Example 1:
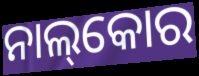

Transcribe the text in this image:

ନାଲ୍‌କୋର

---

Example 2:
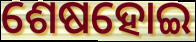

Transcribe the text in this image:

ଶେଷହୋଇ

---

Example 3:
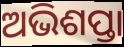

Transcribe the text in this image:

ଅଭିଶପ୍ତା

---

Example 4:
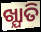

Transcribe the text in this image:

ଖ୍ଯାତି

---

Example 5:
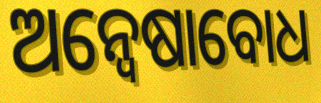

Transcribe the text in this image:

ଅନ୍ୱେଷାବୋଧ